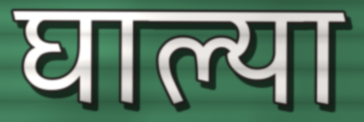
घाल्या